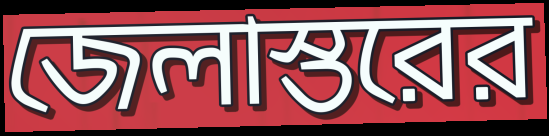
জেলাস্তরের